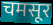
चमसूर